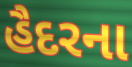
હૈદરના